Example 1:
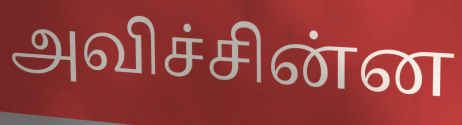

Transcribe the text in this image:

அவிச்சின்ன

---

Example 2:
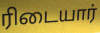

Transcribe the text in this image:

ரிடையார்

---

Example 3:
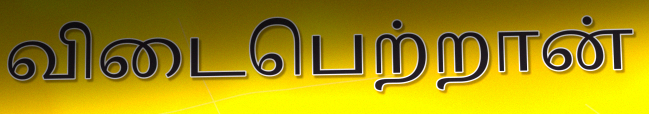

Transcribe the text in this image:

விடைபெற்றான்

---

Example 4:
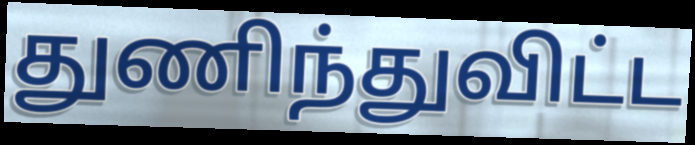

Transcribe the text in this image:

துணிந்துவிட்ட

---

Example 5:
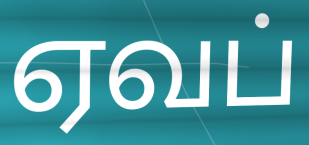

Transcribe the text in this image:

ஏவப்